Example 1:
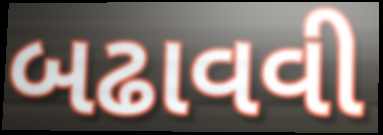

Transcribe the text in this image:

બઢાવવી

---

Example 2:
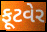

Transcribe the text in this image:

ફૂટવેર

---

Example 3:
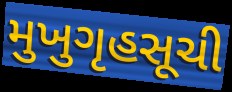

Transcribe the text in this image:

મુખુગૃહસૂચી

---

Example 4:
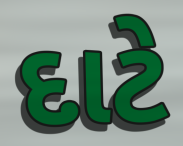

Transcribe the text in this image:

દાટે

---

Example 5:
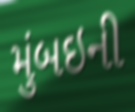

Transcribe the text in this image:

મુંબઇની